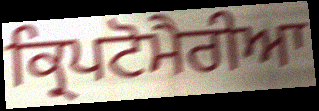
ਕ੍ਰਿਪਟੋਮੈਰੀਆ